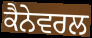
ਕੈਨੇਵਰਲ